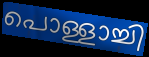
പൊള്ളാച്ചി